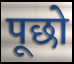
पूछो